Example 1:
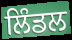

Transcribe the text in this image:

ਲਿੰਡਲ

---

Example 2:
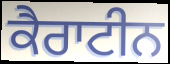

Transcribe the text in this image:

ਕੈਰਾਟੀਨ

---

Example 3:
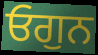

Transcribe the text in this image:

ਓਗੁਨ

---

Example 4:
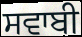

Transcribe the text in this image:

ਸਵਾਬੀ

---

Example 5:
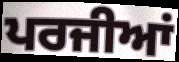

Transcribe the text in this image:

ਪਰਜੀਆਂ